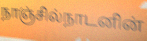
நாஞ்சில்நாடனின்